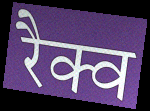
रैक्व